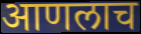
आणलाच